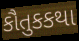
કૌતુકકથા